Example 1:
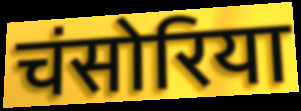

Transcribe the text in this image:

चंसोरिया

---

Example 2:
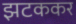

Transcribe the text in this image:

झटककर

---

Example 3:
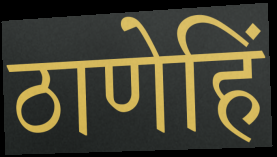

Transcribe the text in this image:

ठाणेहिं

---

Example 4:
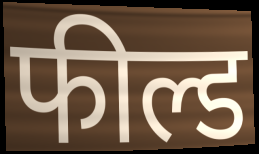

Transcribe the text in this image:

फील्ड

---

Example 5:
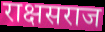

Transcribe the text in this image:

राक्षसराज